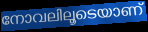
നോവലിലൂടെയാണ്